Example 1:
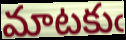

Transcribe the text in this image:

మాటకుఁ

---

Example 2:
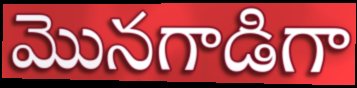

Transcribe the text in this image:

మొనగాడిగా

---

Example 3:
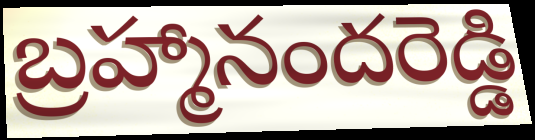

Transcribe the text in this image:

బ్రహ్మానందరెడ్డి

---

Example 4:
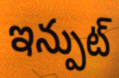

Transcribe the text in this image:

ఇన్పుట్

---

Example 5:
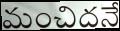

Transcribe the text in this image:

మంచిదనే